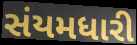
સંયમધારી